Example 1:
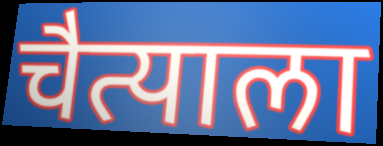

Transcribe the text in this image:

चैत्याला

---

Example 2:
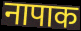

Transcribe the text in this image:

नापाक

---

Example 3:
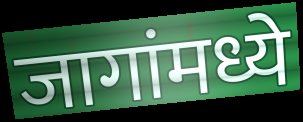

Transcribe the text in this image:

जागांमध्ये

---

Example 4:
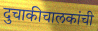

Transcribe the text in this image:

दुचाकीचालकांची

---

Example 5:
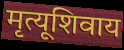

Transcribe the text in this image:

मृत्यूशिवाय